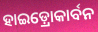
ହାଇଡ଼୍ରୋକାର୍ବନ